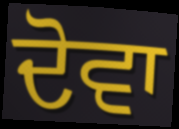
ਦੋਵਾ